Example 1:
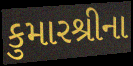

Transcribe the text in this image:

કુમારશ્રીના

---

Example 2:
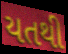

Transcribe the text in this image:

યતથી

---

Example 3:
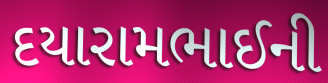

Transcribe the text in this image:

દયારામભાઈની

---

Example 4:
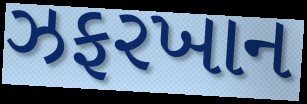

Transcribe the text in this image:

ઝફરખાન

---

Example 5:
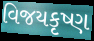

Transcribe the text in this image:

વિજયકૃષ્ણ